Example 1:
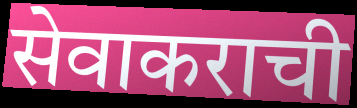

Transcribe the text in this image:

सेवाकराची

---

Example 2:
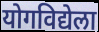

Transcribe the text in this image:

योगविद्येला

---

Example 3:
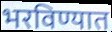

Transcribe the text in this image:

भरविण्यात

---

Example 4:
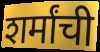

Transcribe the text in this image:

शर्मांची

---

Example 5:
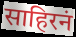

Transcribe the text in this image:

साहिरनं